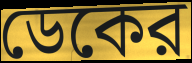
ডেকের